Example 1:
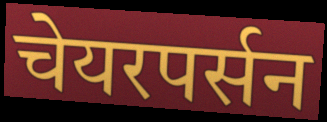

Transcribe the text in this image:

चेयरपर्सन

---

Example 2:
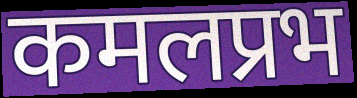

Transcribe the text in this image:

कमलप्रभ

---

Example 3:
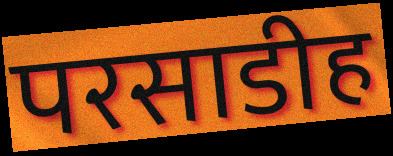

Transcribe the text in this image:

परसाडीह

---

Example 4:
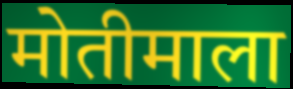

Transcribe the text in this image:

मोतीमाला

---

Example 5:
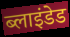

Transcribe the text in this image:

ब्लाइंडेड